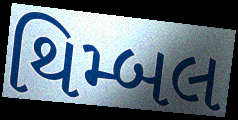
થિમ્બલ